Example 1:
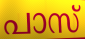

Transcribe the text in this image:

പാസ്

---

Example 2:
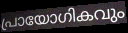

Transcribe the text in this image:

പ്രായോഗികവും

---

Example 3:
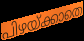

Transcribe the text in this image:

പിഴയ്ക്കാതെ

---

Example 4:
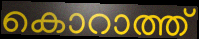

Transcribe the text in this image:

കൊറാത്ത്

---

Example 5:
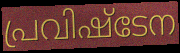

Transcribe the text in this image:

പ്രവിഷ്ടേന